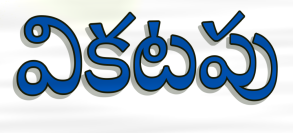
వికటపు